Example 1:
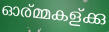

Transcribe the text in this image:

ഓര്മ്മകള്ക്കു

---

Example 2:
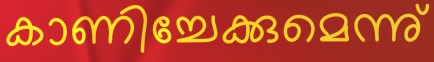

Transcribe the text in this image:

കാണിച്ചേക്കുമെന്നു്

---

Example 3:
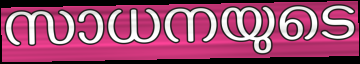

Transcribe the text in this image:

സാധനയുടെ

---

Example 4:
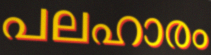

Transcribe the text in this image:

പലഹാരം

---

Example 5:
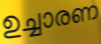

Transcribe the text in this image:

ഉച്ചാരണ